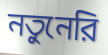
নতুনেরি